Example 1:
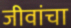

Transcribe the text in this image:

जीवांचा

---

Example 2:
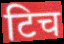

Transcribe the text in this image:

टिच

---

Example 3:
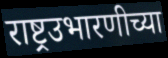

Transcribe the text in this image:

राष्ट्रउभारणीच्या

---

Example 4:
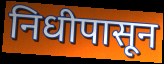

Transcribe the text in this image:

निधीपासून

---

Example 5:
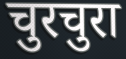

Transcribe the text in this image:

चुरचुरा